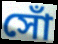
সোঁ